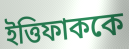
ইত্তিফাককে